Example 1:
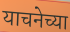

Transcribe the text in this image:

याचनेच्या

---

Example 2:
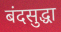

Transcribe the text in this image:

बंदसुद्धा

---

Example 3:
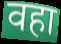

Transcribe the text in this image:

वहा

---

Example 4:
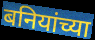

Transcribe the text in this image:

बनियांच्या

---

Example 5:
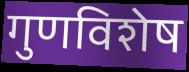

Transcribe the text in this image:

गुणविशेष